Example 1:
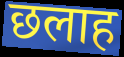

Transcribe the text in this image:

छलाह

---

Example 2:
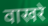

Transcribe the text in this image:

वाखरे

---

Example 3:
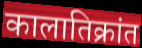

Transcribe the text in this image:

कालातिक्रांत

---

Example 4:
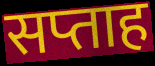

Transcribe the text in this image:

सप्‍ताह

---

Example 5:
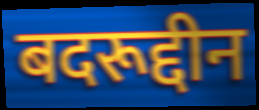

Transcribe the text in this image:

बदरूद्दीन